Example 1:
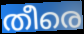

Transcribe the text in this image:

തീരെ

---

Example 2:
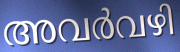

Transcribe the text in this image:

അവർവഴി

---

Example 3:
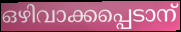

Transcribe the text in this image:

ഒഴിവാക്കപ്പെടാന്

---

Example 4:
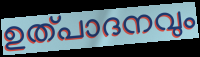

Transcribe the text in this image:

ഉത്പാദനവും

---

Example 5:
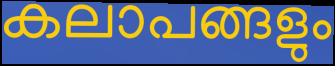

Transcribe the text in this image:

കലാപങ്ങളും